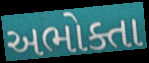
અભોક્તા